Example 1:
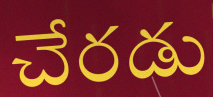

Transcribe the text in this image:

చేరడు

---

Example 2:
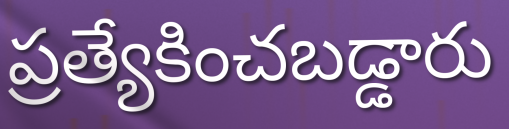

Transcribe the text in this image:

ప్రత్యేకించబడ్డారు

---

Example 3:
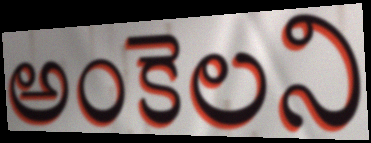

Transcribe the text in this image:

అంకెలని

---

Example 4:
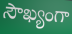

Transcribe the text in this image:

సౌఖ్యంగా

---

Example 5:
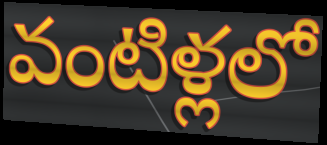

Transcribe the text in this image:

వంటిళ్లలో